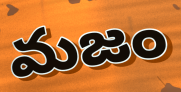
మజం